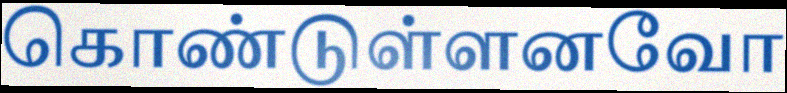
கொண்டுள்ளனவோ